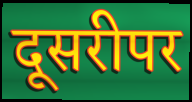
दूसरीपर